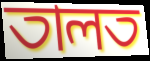
তালত